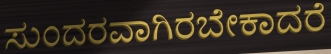
ಸುಂದರವಾಗಿರಬೇಕಾದರೆ